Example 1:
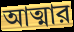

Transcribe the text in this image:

আত্মার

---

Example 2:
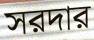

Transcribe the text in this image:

সরদার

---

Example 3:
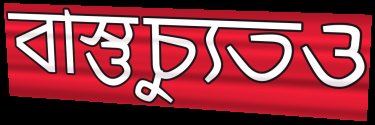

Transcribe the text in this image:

বাস্তুচ্যুতও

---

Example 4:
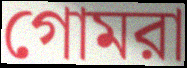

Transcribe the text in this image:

গোমরা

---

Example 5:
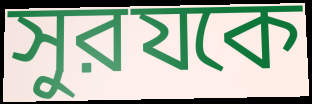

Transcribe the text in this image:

সুরযকে